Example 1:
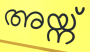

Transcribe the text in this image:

അയ്ന്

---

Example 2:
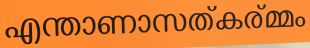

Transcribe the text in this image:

എന്താണാസത്കര്മ്മം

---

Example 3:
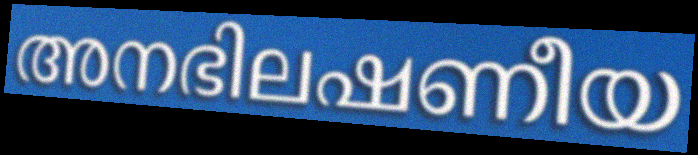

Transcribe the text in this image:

അനഭിലഷണീയ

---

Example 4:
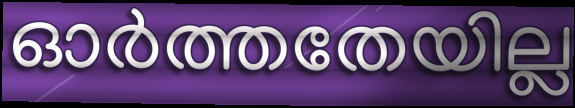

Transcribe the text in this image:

ഓർത്തതേയില്ല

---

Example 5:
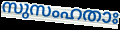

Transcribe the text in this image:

സുസംഹതാഃ